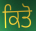
ਕਿਤੋ